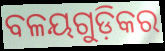
ବଳୟଗୁଡ଼ିକର